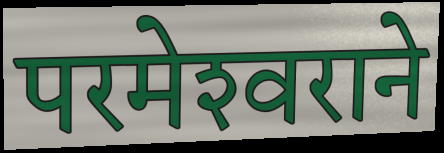
परमेश्वराने